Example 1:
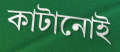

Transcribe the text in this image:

কাটানোই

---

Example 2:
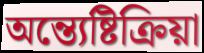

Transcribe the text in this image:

অন্ত্যেষ্টিক্রিয়া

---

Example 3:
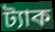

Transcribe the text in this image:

ট্যাক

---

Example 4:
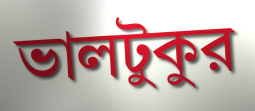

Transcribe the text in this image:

ভালটুকুর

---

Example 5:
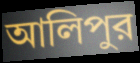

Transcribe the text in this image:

আলিপুর